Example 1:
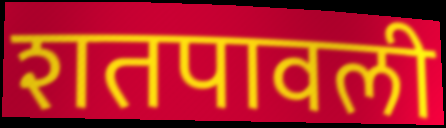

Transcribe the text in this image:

शतपावली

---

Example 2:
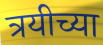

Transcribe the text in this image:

त्रयीच्या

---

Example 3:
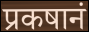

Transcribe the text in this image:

प्रकषानं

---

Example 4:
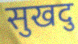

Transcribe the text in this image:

सुखदु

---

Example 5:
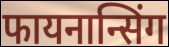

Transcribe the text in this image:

फायनान्सिंग